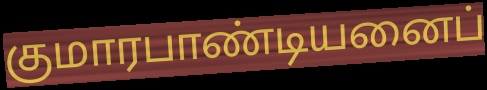
குமாரபாண்டியனைப்